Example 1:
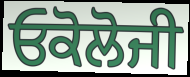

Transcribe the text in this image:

ਓਕੋਲੋਜੀ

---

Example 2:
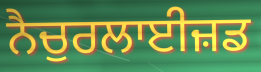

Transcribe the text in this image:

ਨੈਚੁਰਲਾਈਜ਼ਡ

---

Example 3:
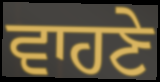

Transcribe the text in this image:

ਵਾਹਣੇ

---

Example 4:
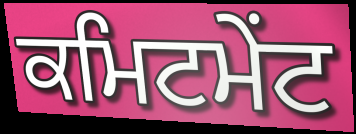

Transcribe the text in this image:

ਕਮਿਟਮੇਂਟ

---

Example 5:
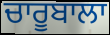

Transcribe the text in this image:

ਚਾਰੂਬਾਲਾ